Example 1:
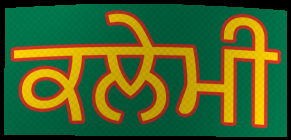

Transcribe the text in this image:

ਕਲੇਮੀ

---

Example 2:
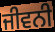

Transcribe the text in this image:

ਜੀਵਨੀ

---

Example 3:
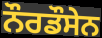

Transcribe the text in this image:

ਨੌਰਡੌਸੇਨ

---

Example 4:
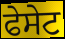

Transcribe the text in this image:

ਫੇਸੇਟ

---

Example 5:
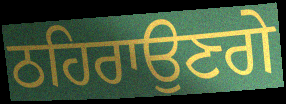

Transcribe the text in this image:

ਠਹਿਰਾਉਣਗੇ